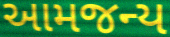
આમજન્ય